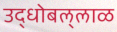
उद्धोबल्लाळ